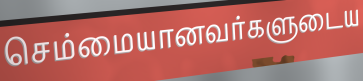
செம்மையானவர்களுடைய